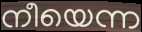
നീയെന്ന